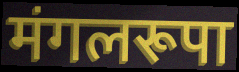
मंगलरूपा